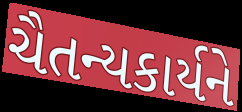
ચૈતન્યકાર્યને